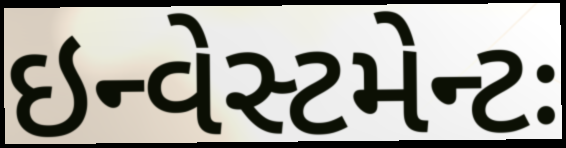
ઇન્વેસ્ટમેન્ટઃ